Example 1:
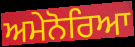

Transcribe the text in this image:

ਅਮੇਨੋਰਿਆ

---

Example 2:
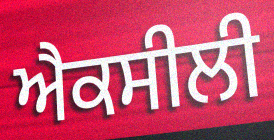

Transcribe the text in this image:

ਐਕਸੀਲੀ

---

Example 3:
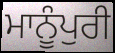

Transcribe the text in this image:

ਮਾਨੂੰਪੁਰੀ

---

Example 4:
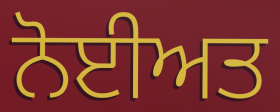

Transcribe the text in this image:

ਨੋਈਅਤ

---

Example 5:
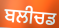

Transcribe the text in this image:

ਬਲੀਚਡ